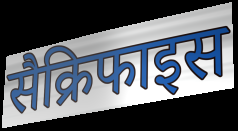
सैक्रिफाइस